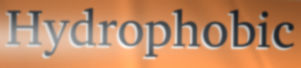
Hydrophobic